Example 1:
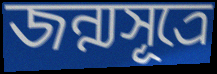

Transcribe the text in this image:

জন্মসূত্রে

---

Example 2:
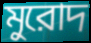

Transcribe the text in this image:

মুরোদ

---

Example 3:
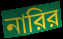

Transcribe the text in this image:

নারির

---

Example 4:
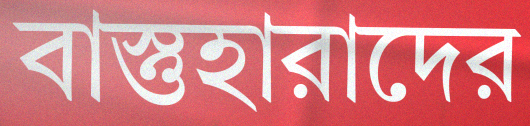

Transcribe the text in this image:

বাস্তুহারাদের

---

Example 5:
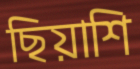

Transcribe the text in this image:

ছিয়াশি